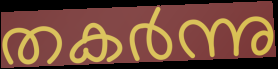
തകർന്നു